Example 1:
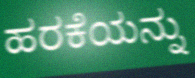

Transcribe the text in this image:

ಹರಕೆಯನ್ನು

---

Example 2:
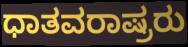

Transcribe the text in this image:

ಧಾತವರಾಷ್ರರು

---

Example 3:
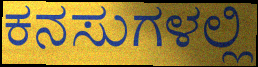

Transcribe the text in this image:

ಕನಸುಗಳಲ್ಲಿ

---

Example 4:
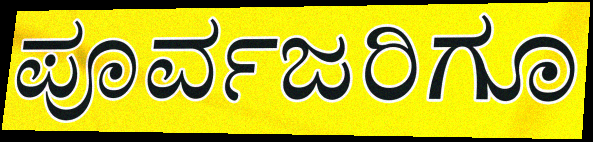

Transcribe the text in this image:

ಪೂರ್ವಜರಿಗೂ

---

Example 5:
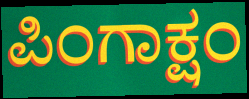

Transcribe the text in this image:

ಪಿಂಗಾಕ್ಷಂ